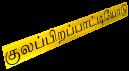
குலப்பிறப்பாட்டியோடு